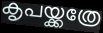
കൃപയ്ക്കത്രേ